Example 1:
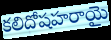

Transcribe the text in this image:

కలిదోషహరాయై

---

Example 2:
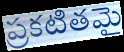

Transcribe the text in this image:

ప్రకటితమై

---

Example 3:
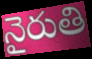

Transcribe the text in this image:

నైరుతి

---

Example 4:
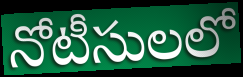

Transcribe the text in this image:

నోటీసులలో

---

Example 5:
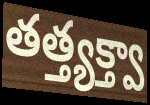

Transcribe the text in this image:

తత్త్యక్త్వా